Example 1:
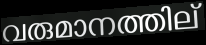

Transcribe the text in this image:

വരുമാനത്തില്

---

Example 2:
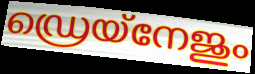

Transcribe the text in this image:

ഡ്രെയ്നേജും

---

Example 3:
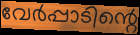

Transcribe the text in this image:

വേർപ്പാടിന്റെ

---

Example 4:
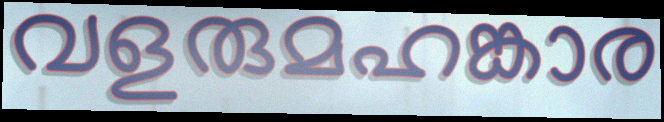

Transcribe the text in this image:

വളരുമഹങ്കാര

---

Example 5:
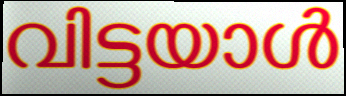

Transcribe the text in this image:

വിട്ടയാൾ